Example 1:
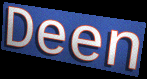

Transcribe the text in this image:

Deen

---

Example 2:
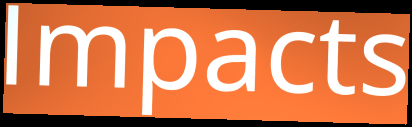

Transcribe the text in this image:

Impacts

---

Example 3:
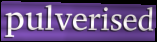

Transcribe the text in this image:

pulverised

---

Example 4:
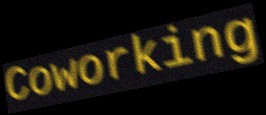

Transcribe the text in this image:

Coworking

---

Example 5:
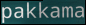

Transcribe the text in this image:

pakkama